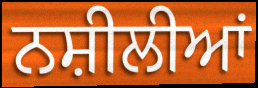
ਨਸ਼ੀਲੀਆਂ